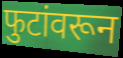
फुटांवरून